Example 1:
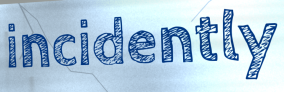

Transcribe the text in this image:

incidently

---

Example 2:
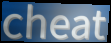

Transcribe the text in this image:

cheat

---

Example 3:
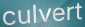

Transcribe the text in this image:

culvert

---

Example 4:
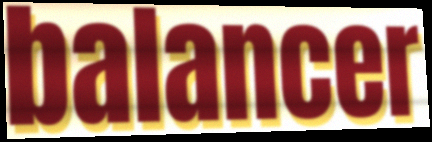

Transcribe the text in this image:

balancer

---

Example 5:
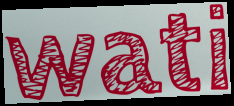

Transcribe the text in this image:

wati